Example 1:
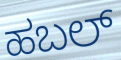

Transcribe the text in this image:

ಹಬಲ್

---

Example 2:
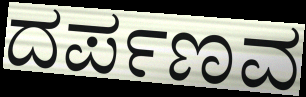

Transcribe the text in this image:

ದರ್ಪಣವ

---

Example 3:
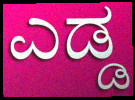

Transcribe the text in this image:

ಎಡ್ಡ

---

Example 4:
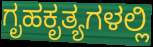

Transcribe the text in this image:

ಗೃಹಕೃತ್ಯಗಳಲ್ಲಿ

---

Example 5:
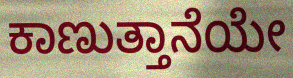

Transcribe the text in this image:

ಕಾಣುತ್ತಾನೆಯೇ